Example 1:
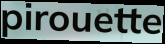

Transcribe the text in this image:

pirouette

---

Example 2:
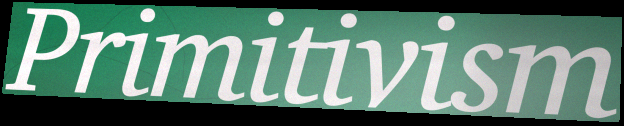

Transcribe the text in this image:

Primitivism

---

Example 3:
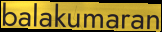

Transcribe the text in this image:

balakumaran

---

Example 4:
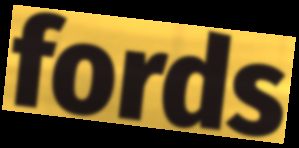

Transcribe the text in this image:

fords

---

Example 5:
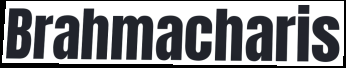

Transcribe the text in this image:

Brahmacharis